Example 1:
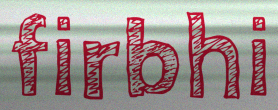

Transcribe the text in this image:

firbhi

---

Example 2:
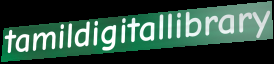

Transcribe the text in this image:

tamildigitallibrary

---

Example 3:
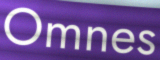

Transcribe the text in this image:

Omnes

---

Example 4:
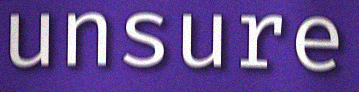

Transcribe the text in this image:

unsure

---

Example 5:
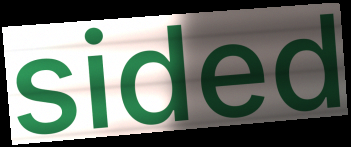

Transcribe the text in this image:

sided